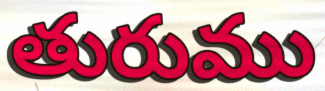
తురుము